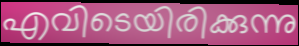
എവിടെയിരിക്കുന്നു